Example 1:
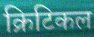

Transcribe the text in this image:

क्रिटिकल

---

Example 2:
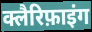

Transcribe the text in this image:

क्लैरिफ़ाइंग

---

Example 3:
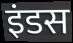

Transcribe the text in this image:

इंडस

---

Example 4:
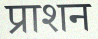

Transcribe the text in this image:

प्राशन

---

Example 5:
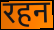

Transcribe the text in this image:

रहन